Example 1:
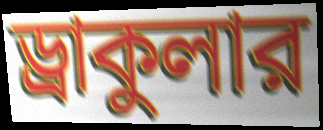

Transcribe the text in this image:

ড্রাকুলার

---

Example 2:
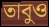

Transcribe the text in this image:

তাবুও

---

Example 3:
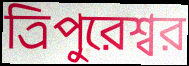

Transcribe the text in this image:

ত্রিপুরেশ্বর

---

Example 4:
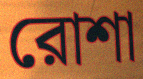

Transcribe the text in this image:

রোশা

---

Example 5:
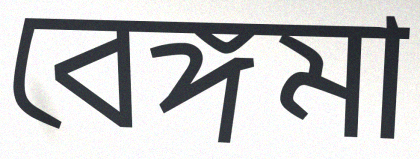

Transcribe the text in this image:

বেঙ্গমা